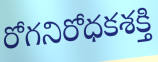
రోగనిరోధకశక్తి